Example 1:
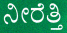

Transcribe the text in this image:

ನೀರೆತ್ತಿ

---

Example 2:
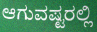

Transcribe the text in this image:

ಆಗುವಷ್ಟರಲ್ಲಿ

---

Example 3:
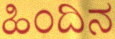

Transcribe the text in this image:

ಹಿಂದಿನ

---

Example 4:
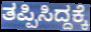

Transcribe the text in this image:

ತಪ್ಪಿಸಿದ್ದಕ್ಕೆ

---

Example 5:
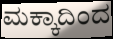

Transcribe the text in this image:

ಮಕ್ಕಾದಿಂದ